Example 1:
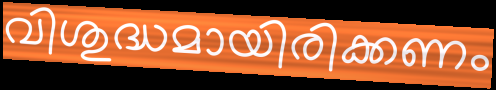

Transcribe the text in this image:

വിശുദ്ധമായിരിക്കണം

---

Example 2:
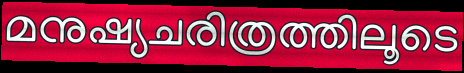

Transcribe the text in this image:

മനുഷ്യചരിത്രത്തിലൂടെ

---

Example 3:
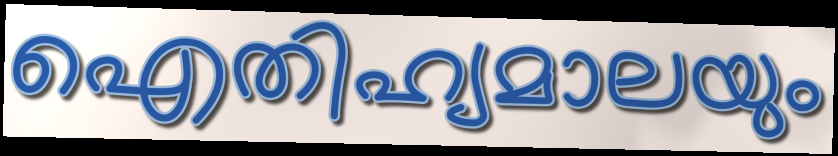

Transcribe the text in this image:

ഐതിഹ്യമാലയും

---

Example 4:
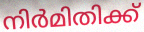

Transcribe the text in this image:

നിർമിതിക്ക്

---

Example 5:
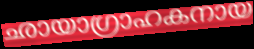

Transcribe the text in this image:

ഛായാഗ്രാഹകനായ